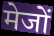
मेजों